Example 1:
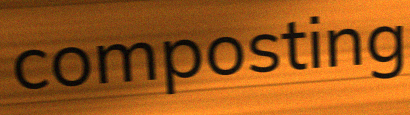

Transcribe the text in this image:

composting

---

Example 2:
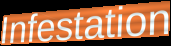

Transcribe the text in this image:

Infestation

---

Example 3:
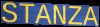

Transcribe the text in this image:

STANZA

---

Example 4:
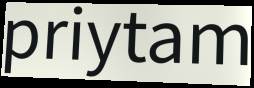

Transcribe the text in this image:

priytam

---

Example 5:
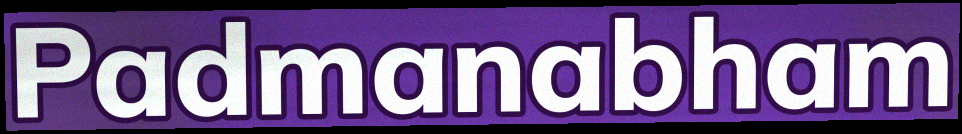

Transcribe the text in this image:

Padmanabham